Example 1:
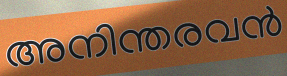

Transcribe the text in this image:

അനിന്തരവൻ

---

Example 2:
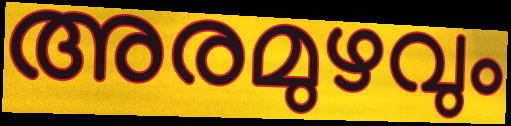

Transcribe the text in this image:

അരമുഴവും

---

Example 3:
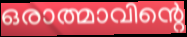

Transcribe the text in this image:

ഒരാത്മാവിന്റെ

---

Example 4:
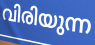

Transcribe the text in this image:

വിരിയുന്ന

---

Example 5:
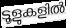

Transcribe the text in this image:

ടൂളുകളിൽ